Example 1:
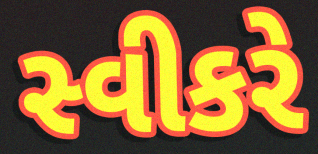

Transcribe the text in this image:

સ્વીકરે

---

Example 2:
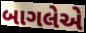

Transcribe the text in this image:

બાગલેએ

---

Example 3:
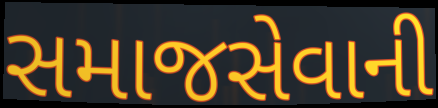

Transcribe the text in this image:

સમાજસેવાની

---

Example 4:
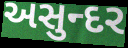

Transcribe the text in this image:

અસુન્દર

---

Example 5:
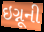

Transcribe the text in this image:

ઇગ્નૂની